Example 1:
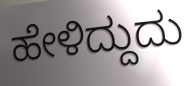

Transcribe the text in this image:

ಹೇಳಿದ್ದುದು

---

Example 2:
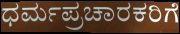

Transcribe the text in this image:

ಧರ್ಮಪ್ರಚಾರಕರಿಗೆ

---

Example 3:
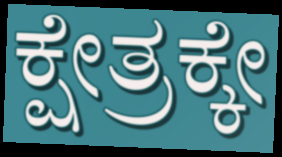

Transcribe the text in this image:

ಕ್ಷೇತ್ರಕ್ಕೇ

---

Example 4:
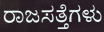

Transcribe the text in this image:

ರಾಜಸತ್ತೆಗಳು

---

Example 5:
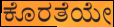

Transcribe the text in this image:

ಕೊರತೆಯೇ